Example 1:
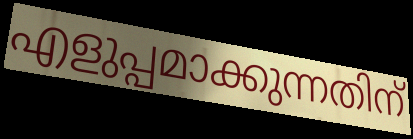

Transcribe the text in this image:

എളുപ്പമാക്കുന്നതിന്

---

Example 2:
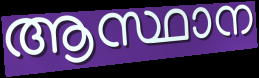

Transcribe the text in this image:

ആസ്ഥാന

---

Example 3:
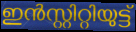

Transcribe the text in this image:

ഇൻസ്റ്റിറ്റിയുട്ട്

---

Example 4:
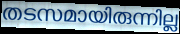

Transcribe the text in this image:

തടസമായിരുന്നില്ല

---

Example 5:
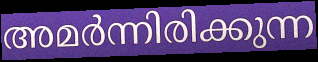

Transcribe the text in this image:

അമർന്നിരിക്കുന്ന